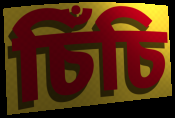
চিঁচি